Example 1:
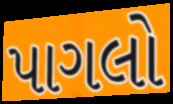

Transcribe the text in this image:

પાગલો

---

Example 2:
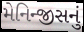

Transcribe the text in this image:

મેનિન્જીસનું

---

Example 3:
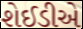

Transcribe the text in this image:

શેઈડીએ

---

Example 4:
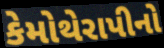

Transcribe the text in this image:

કેમોથેરાપીનો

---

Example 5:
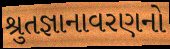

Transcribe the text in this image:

શ્રુતજ્ઞાનાવરણનો